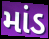
માંડ